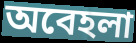
অবেহলা